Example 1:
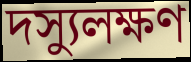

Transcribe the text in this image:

দস্যুলক্ষণ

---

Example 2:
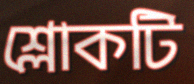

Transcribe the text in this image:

শ্লোকটি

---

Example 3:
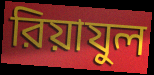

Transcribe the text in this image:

রিয়াযুল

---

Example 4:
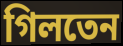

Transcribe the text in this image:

গিলতেন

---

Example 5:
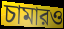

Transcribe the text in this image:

চামারও